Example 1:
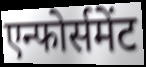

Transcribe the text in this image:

एन्फोर्समेंट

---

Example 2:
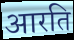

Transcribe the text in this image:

आरति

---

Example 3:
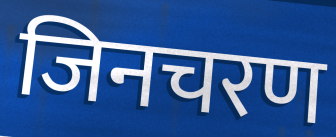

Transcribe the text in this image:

जिनचरण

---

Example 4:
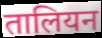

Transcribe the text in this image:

तालियन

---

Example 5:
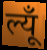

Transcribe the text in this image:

ल्यूँ